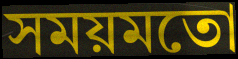
সময়মতো